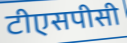
टीएसपीसी